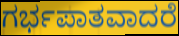
ಗರ್ಭಪಾತವಾದರೆ